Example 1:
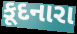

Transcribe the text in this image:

કૂદનારા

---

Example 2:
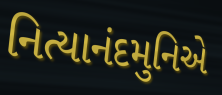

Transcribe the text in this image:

નિત્યાનંદમુનિએ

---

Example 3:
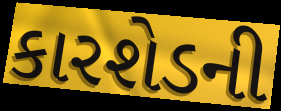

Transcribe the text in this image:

કારશેડની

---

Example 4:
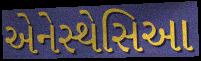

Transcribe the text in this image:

એનેસ્થેસિઆ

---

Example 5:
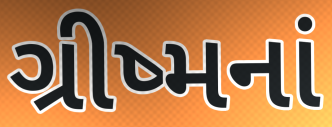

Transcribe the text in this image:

ગ્રીષ્મનાં